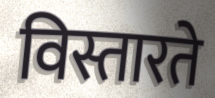
विस्तारते